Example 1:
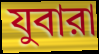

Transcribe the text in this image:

যুবারা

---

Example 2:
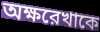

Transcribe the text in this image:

অক্ষরেখাকে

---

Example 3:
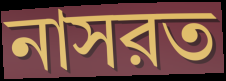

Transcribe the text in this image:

নাসরত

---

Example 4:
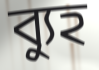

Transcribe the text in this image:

ব্যুহ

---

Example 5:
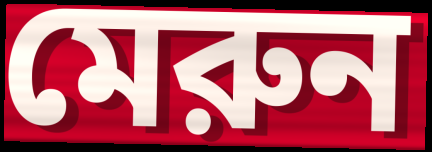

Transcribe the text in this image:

মেরুন